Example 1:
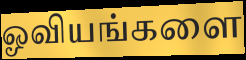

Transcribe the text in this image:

ஓவியங்களை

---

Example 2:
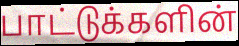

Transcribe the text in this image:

பாட்டுக்களின்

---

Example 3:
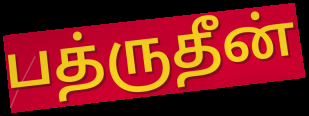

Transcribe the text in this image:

பத்ருதீன்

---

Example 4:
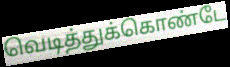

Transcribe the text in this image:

வெடித்துக்கொண்டே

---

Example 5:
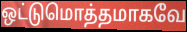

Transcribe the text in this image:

ஒட்டுமொத்தமாகவே